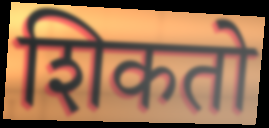
शिकतो